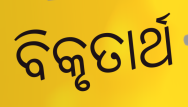
ବିକୃତାର୍ଥ